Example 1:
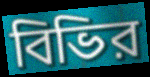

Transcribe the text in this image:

বিভির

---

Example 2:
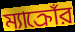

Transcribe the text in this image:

ম্যাক্রোঁর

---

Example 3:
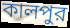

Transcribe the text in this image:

কালপুর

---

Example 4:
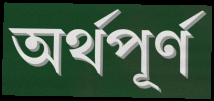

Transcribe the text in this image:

অর্থপূর্ণ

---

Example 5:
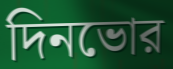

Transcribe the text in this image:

দিনভোর